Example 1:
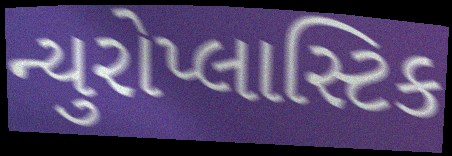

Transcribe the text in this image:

ન્યુરોપ્લાસ્ટિક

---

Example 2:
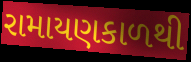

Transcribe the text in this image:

રામાયણકાળથી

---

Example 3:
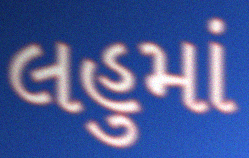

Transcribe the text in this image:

લહુમાં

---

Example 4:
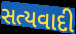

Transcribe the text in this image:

સત્યવાદી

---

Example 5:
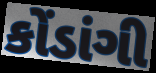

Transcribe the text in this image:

કોંડાંગી